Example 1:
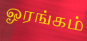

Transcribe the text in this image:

ஓரங்கம்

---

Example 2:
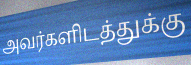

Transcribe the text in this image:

அவர்களிடத்துக்கு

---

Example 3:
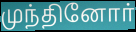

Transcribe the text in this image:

முந்தினோர்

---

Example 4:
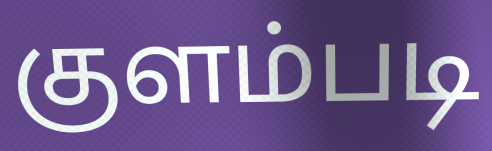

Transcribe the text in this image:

குளம்படி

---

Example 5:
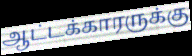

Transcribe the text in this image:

ஆட்டக்காரருக்கு